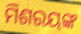
ମିଶରୟଙ୍କ